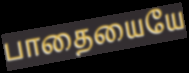
பாதையையே